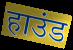
हाउंड